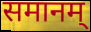
समानम्